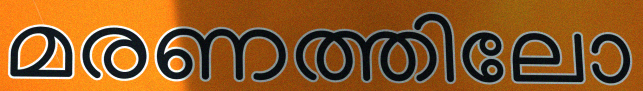
മരണത്തിലോ